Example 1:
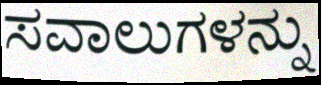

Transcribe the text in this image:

ಸವಾಲುಗಳನ್ನು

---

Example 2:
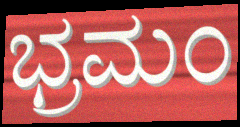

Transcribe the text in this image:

ಭ್ರಮಂ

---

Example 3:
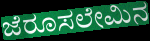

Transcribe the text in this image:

ಜೆರೂಸಲೇಮಿನ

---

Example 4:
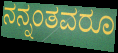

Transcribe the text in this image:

ನನ್ನಂತವರೂ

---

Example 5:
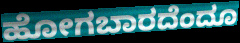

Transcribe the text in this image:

ಹೋಗಬಾರದೆಂದೂ